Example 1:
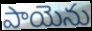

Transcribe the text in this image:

పాయెను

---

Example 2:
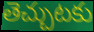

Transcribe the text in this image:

తెచ్చుటకు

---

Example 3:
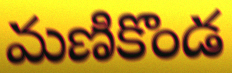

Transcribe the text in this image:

మణికొండ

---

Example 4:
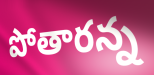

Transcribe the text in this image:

పోతారన్న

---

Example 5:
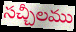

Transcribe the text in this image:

సచ్చీలము